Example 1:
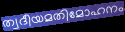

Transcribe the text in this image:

ത്വദീയമതിമോഹനം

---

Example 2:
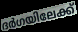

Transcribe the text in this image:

ദർഗയിലേക്ക്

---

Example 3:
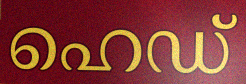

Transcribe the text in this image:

ഹെഡ്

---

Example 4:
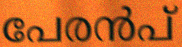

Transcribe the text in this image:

പേരൻപ്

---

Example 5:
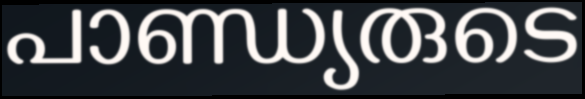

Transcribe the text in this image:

പാണ്ഡ്യരുടെ